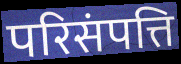
परिसंपत्ति